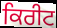
ਕਿਰੀਟ